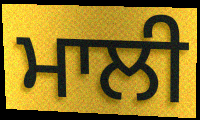
ਮਾਲੀ